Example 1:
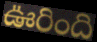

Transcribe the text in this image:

ఊరింది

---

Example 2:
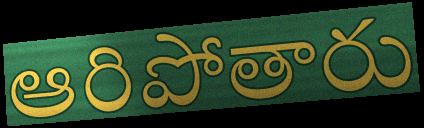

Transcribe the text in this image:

ఆరిపోతారు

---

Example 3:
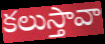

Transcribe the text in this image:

కలుస్తావా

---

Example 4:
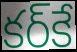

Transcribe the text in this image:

కర్‌కే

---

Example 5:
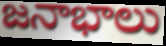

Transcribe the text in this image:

జనాభాలు